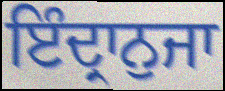
ਇੰਦ੍ਰਾਨੁਜਾ